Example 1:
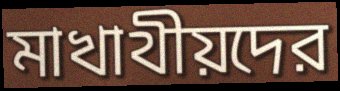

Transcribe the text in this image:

মাখাথীয়দের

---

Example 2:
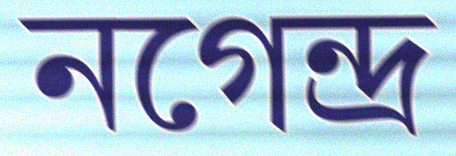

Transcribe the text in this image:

নগেন্দ্র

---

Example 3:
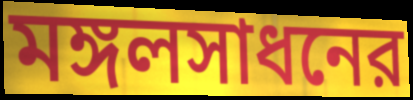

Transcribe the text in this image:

মঙ্গলসাধনের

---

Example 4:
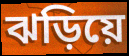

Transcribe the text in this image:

ঝড়িয়ে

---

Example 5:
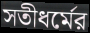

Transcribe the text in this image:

সতীধর্মের